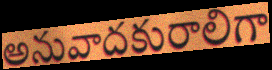
అనువాదకురాలిగా